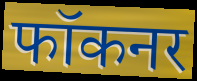
फॉकनर